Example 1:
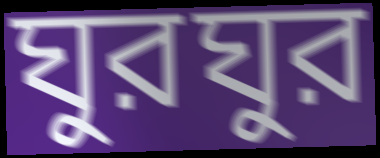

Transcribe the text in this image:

ঘুরঘুর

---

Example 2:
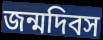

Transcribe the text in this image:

জন্মদিবস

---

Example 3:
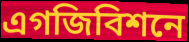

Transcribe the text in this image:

এগজিবিশনে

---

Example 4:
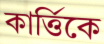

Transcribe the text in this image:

কার্ত্তিকে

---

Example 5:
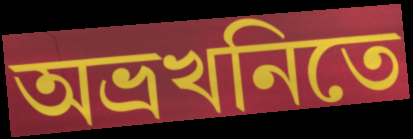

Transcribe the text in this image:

অভ্রখনিতে